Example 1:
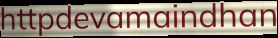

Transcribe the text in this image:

httpdevamaindhan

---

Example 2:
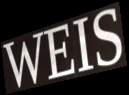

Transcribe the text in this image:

WEIS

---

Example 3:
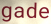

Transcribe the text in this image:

gade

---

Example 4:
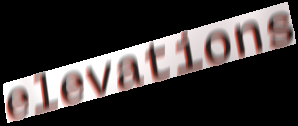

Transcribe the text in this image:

elevations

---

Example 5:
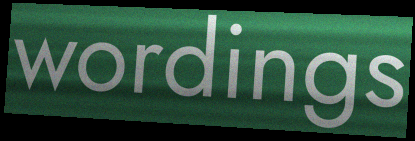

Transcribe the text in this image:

wordings